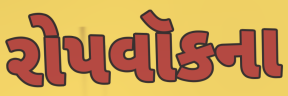
રોપવૉકના